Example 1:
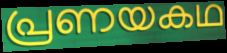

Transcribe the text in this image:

പ്രണയകഥ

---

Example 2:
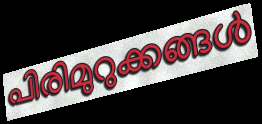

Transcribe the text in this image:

പിരിമുറുക്കങ്ങൾ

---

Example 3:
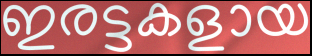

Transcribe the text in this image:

ഇരട്ടകളായ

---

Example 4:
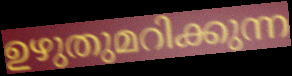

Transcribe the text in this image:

ഉഴുതുമറിക്കുന്ന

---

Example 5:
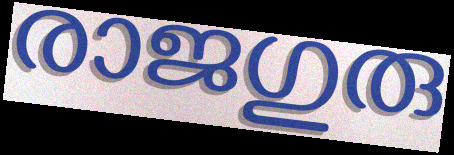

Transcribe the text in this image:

രാജഗുരു